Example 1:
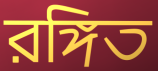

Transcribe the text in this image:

রঙ্গিত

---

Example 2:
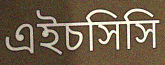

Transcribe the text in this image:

এইচসিসি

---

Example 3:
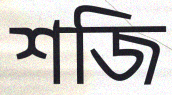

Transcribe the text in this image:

শজি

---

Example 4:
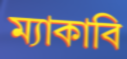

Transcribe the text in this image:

ম্যাকাবি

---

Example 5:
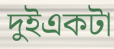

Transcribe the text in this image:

দুইএকটা